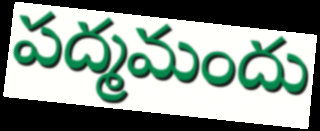
పద్మమందు